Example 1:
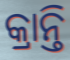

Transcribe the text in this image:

କ୍ରାନ୍ତି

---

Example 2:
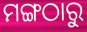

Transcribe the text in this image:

ମଙ୍ଗଠାରୁ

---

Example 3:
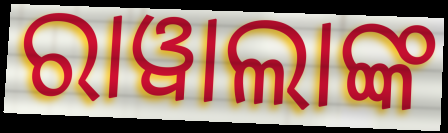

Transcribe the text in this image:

ରାୱାଲାଙ୍କ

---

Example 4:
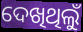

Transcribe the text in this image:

ଦେଖିଥିଲୁଁ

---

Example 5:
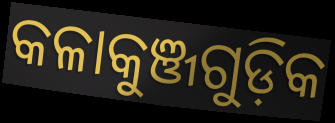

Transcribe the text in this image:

କଳାକୁଞ୍ଜଗୁଡ଼ିକ